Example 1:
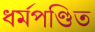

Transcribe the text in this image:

ধর্মপণ্ডিত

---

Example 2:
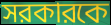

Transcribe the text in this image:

সরকারকে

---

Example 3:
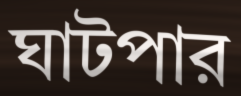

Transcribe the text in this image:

ঘাটপার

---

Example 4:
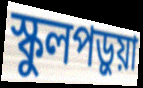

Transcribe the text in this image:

স্কুলপড়ুয়া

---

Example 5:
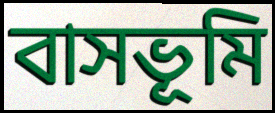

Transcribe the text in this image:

বাসভূমি